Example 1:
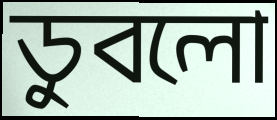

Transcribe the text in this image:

ডুবলো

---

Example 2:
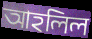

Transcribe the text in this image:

আহলিল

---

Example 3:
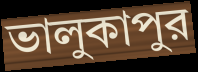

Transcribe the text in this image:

ভালুকাপুর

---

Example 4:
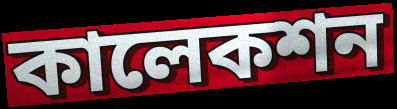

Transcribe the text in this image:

কালেকশন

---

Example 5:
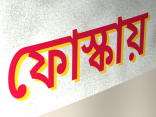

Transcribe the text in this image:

ফোস্কায়